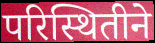
परिस्थितीने